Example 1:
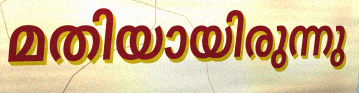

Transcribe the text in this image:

മതിയായിരുന്നു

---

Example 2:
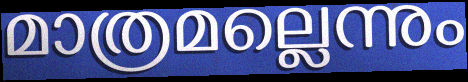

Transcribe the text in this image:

മാത്രമല്ലെന്നും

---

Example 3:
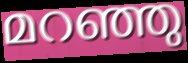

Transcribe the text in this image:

മറഞ്ഞു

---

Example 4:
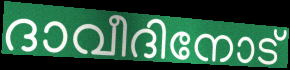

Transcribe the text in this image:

ദാവീദിനോട്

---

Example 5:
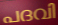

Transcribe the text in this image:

പദവി